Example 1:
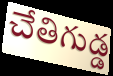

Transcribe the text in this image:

చేతిగుడ్డ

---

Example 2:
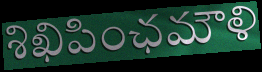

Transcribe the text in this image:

శిఖిపింఛమౌళి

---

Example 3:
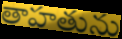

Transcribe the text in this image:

తాహతును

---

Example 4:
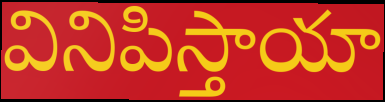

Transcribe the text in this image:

వినిపిస్తాయా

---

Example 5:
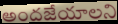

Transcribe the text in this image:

అందజేయాలని